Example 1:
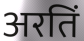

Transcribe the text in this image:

अरतिं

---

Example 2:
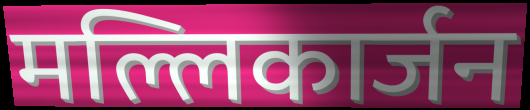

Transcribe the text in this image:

मल्लिकार्जन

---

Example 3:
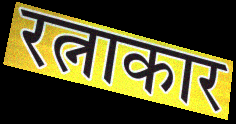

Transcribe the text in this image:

रत्नाकार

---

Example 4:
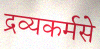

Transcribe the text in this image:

द्रव्यकर्मसे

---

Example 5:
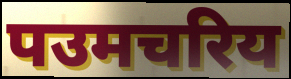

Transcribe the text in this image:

पउमचरिय